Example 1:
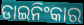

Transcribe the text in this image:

ଡାଇନିଂକାର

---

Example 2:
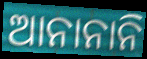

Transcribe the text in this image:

ଆନାନାନି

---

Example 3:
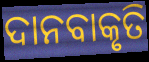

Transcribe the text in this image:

ଦାନବାକୃତି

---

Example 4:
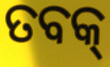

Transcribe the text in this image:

ତବକ୍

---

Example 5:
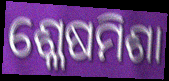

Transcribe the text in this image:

ଶ୍ଳେଷମିଶା